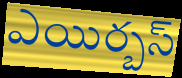
ఎయిర్బస్